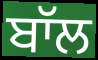
ਬਾੱਲ